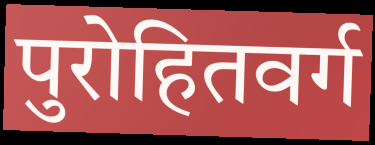
पुरोहितवर्ग